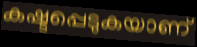
കഷ്ടപ്പെടുകയാണ്